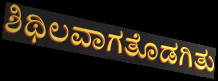
ಶಿಥಿಲವಾಗತೊಡಗಿತು